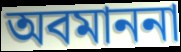
অবমাননা